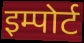
इम्पोर्ट